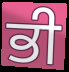
ਭੀ